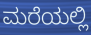
ಮರೆಯಲ್ಲಿ